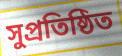
সুপ্ৰতিষ্ঠিত